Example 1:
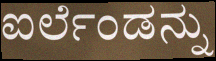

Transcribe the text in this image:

ಐರ್ಲೆಂಡನ್ನು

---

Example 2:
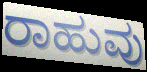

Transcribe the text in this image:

ರಾಹುವು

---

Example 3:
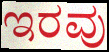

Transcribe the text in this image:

ಇರವು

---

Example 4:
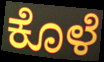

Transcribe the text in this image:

ಕೊಳೆ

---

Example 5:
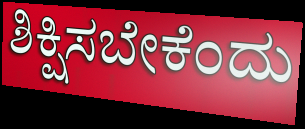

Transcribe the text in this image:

ಶಿಕ್ಷಿಸಬೇಕೆಂದು